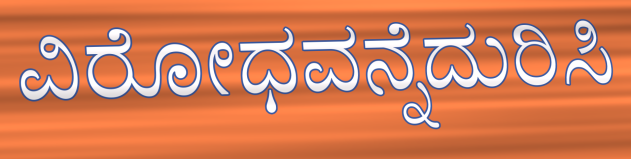
ವಿರೋಧವನ್ನೆದುರಿಸಿ